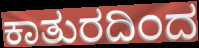
ಕಾತುರದಿಂದ